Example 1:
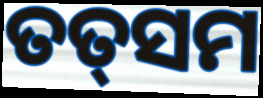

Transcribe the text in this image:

ତତ୍‌ସମ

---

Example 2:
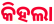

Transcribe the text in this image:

କିହଲା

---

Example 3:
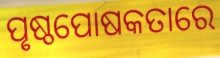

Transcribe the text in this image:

ପୃଷ୍ଠପୋଷକତାରେ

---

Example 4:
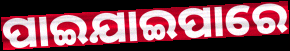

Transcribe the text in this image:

ପାଇଯାଇପାରେ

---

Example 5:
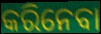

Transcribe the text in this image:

କରିନେବା